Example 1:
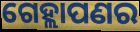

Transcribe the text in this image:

ଗେହ୍ଲାପଣର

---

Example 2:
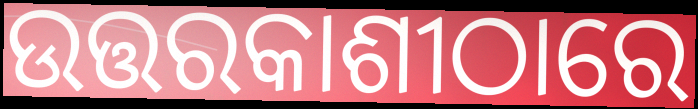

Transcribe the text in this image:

ଉତ୍ତରକାଶୀଠାରେ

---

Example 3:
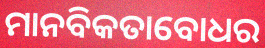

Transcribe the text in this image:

ମାନବିକତାବୋଧର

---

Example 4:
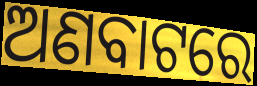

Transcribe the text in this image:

ଅଣବାଟରେ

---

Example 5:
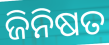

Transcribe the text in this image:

ଜିନିଷତ